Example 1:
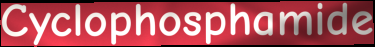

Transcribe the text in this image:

Cyclophosphamide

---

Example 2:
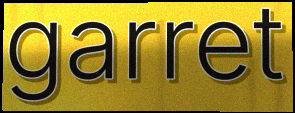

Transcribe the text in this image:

garret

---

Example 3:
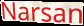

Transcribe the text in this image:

Narsan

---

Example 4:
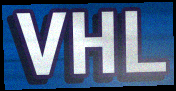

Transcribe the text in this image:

VHL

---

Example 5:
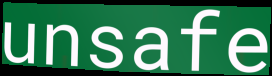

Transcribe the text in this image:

unsafe